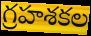
గ్రహశకల